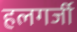
हलगर्जी